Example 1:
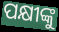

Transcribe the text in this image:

ପକ୍ଷୀଙ୍କୁ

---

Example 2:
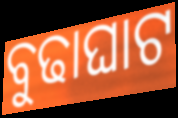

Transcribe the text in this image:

ବୁଢାଘାଟ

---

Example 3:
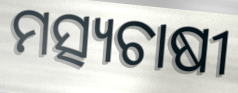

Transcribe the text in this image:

ମତ୍ସ୍ୟଚାଷୀ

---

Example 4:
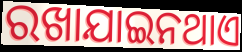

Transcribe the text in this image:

ରଖାଯାଇନଥାଏ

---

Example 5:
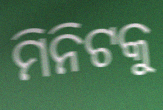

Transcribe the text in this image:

ମିନିଟକୁ